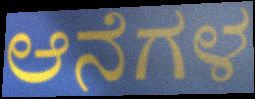
ಆನೆಗಳ